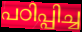
പഠിപ്പിച്ച